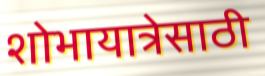
शोभायात्रेसाठी